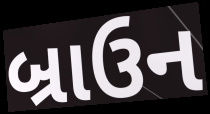
બ્રાઉન